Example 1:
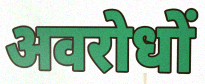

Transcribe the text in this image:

अवरोधों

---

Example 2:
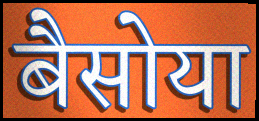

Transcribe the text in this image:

बैसोया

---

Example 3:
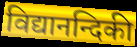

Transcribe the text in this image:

विद्यानन्दिकी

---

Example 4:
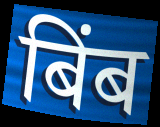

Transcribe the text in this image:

बिंब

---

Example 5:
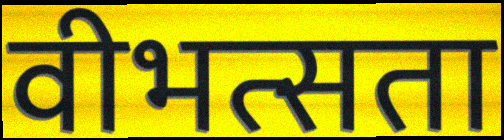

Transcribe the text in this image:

वीभत्सता